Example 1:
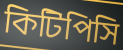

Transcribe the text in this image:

কিটিপিসি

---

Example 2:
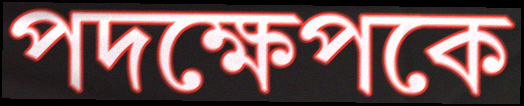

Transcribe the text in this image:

পদক্ষেপকে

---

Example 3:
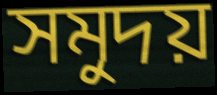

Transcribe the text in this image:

সমুদয়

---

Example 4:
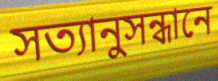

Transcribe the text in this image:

সত্যানুসন্ধানে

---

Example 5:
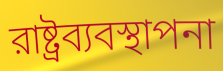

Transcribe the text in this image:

রাষ্ট্রব্যবস্থাপনা